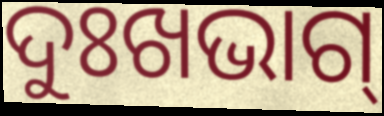
ଦୁଃଖଭାଗ୍